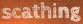
scathing